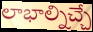
లాభాల్నిచ్చే